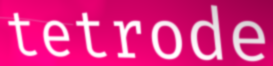
tetrode